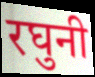
रघुनी